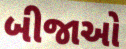
બીજાઓ